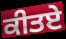
ਕੀਤਏ